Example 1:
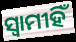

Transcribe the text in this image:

ସ୍ଵାମୀହିଁ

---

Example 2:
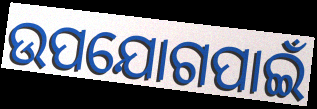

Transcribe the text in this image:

ଉପଯୋଗପାଇଁ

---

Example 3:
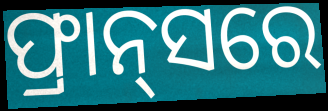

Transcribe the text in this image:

ଫ୍ରାନ୍‌ସରେ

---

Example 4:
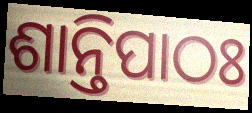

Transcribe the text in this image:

ଶାନ୍ତିପାଠଃ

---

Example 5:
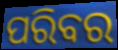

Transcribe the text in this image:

ପରିବର